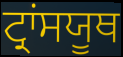
ਟ੍ਰਾਂਸਯੂਥ